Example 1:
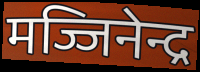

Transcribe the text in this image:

मज्जिनेन्द्र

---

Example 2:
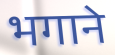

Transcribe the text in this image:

भगाने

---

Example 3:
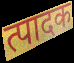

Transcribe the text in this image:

त्पादक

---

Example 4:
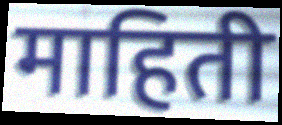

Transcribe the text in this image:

माहिती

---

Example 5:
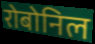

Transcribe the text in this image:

रोबोनिल